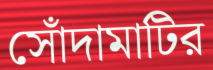
সোঁদামাটির